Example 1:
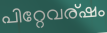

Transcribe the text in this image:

പിറ്റേവര്ഷം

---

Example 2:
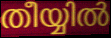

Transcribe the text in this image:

തീയ്യിൽ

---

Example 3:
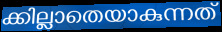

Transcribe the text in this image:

ക്കില്ലാതെയാകുന്നത്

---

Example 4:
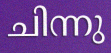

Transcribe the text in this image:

ചിന്നു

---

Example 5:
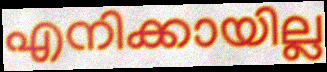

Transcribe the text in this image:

എനിക്കായില്ല